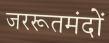
जररूतमंदों